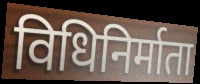
विधिनिर्माता